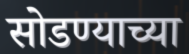
सोडण्याच्या